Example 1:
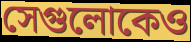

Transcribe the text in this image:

সেগুলোকেও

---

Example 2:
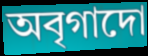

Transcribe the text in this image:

অবৃগাদো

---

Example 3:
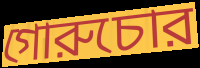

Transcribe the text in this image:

গোরুচোর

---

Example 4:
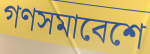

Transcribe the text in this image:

গণসমাবেশে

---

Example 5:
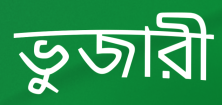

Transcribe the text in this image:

ভুজারী